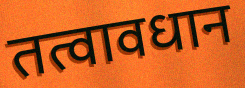
तत्‍वावधान